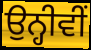
ਉਨ੍ਹੀਵੀਂ